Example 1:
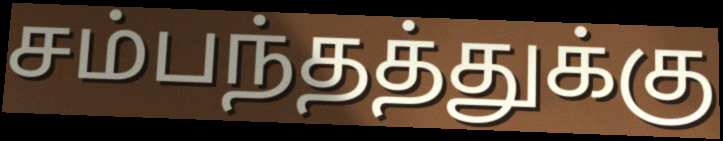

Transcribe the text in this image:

சம்பந்தத்துக்கு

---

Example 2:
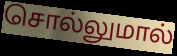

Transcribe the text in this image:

சொல்லுமால்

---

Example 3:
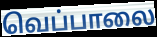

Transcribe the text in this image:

வெப்பாலை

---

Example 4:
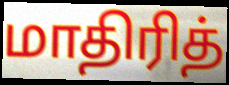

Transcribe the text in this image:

மாதிரித்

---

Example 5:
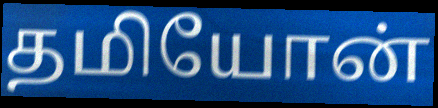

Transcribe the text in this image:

தமியோன்